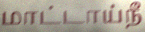
மாட்டாய்நீ